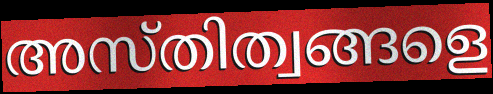
അസ്തിത്വങ്ങളെ